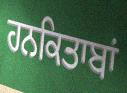
ਹਨਕਿਤਾਬਾਂ